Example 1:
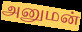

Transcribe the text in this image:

அனுமன்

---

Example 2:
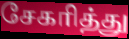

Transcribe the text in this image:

சேகரித்து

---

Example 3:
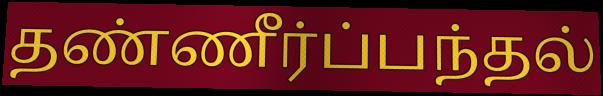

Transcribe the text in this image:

தண்ணீர்ப்பந்தல்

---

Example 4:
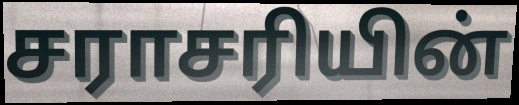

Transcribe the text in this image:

சராசரியின்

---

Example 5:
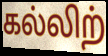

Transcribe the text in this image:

கல்லிற்